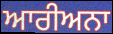
ਆਰੀਅਨਾ